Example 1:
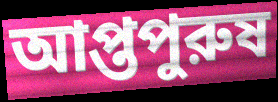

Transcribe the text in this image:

আপ্তপুরুষ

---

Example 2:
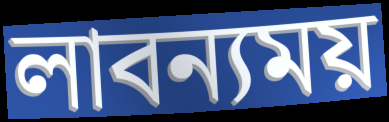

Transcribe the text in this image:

লাবন্যময়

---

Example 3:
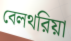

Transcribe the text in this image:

বেলথরিয়া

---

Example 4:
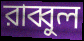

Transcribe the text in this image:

রাব্বুল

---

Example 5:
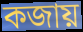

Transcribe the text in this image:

কজায়